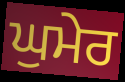
ਘੁਮੇਰ